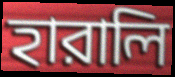
হারালি